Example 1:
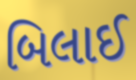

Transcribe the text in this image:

બિલાઈ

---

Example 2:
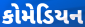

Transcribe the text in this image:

કોમેડિયન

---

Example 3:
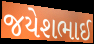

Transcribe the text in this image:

જયેશભાઈ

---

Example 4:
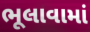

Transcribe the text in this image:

ભૂલાવામાં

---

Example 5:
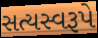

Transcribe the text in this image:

સત્યસ્વરૂપે